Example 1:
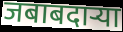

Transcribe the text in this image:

जबाबदाऱ्या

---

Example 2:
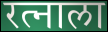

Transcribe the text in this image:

रत्नाला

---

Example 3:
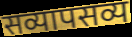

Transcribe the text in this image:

सव्यापसव्य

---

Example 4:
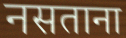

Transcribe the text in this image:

नसताना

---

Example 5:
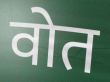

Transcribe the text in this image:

वोत